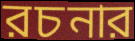
রচনার